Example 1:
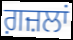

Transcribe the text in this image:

ਗ਼ਜ਼ਲਾਂ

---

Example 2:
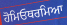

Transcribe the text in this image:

ਹੋਮਿਓਥਰਮਿਆ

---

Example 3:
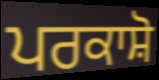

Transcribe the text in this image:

ਪਰਕਾਸ਼ੋ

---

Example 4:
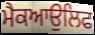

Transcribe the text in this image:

ਮੈਕਆਉਲਿਫ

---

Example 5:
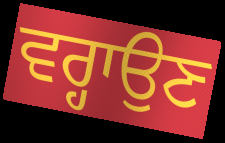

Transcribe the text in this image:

ਵਰ੍ਹਾਉਣ